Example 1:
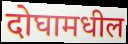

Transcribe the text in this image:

दोघामधील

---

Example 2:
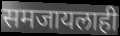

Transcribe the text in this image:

समजायलाही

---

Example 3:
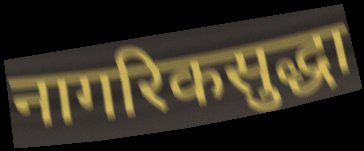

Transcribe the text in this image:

नागरिकसुद्धा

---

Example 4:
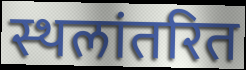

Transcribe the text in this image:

स्थलांतरित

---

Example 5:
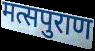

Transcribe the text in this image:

मत्सपुराण